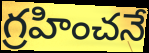
గ్రహించనే